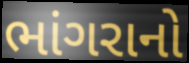
ભાંગરાનો